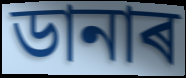
ডানাৰ